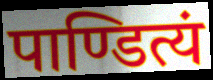
पाण्डित्यं